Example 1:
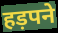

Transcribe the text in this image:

हड़पने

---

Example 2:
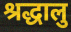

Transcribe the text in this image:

श्रद्धालु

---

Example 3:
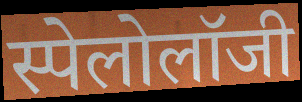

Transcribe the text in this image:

स्पेलोलॉजी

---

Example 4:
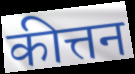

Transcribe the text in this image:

कीत्तन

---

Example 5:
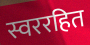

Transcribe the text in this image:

स्वररहित